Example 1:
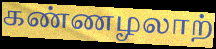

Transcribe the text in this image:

கண்ணழலாற்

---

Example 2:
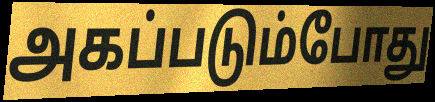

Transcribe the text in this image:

அகப்படும்போது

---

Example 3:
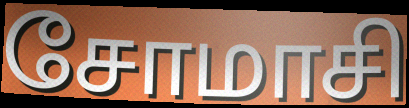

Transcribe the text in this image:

சோமாசி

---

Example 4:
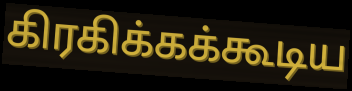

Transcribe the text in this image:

கிரகிக்கக்கூடிய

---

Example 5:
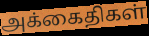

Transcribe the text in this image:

அக்கைதிகள்